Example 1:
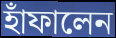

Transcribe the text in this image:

হাঁফালেন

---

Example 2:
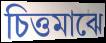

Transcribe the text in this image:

চিত্তমাঝে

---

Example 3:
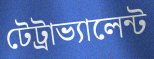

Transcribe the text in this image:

টেট্রাভ্যালেন্ট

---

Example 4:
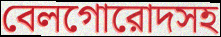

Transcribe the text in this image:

বেলগোরোদসহ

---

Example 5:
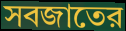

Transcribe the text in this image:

সবজাতের